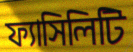
ফ্যাসিলিটি